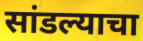
सांडल्याचा